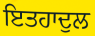
ਇਤਹਾਦੁਲ